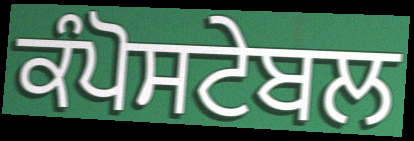
ਕੰਪੋਸਟੇਬਲ